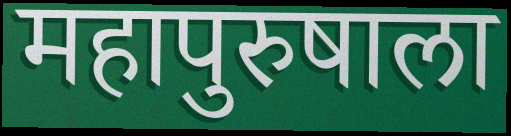
महापुरुषाला